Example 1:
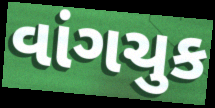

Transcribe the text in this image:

વાંગચુક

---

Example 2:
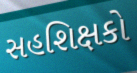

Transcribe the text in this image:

સહશિક્ષકો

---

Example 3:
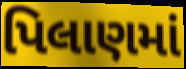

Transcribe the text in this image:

પિલાણમાં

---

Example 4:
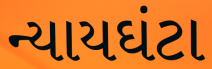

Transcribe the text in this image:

ન્યાયઘંટા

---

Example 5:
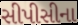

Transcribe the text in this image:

સીપીસીના